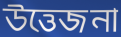
উত্তেজনা